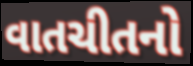
વાતચીતનો